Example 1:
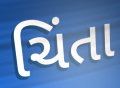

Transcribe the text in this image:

ચિંતા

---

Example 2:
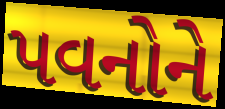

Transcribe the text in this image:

પવનોને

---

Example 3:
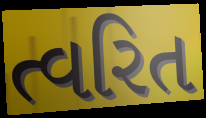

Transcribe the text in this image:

ત્વરિત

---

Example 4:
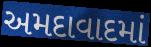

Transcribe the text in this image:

અમદાવાદમાં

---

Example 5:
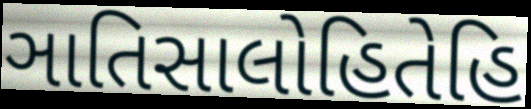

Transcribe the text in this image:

ઞાતિસાલોહિતેહિ